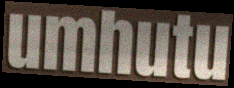
umhutu